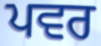
ਪਵਰ